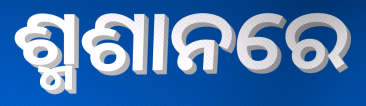
ଶ୍ମଶାନରେ